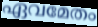
ഏവമേതം